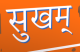
सुखम्